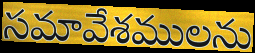
సమావేశములను